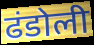
ढंडोली